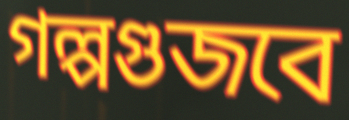
গল্পগুজবে